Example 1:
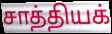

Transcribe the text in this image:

சாத்தியக்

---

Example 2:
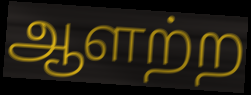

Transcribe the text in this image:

ஆளற்ற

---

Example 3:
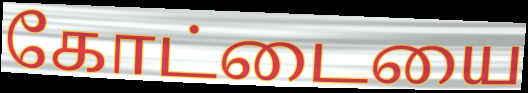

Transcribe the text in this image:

கோட்டையை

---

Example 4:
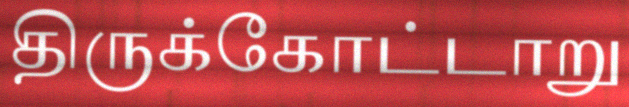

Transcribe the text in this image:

திருக்கோட்டாறு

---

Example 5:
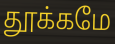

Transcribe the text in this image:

தூக்கமே